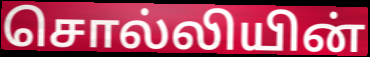
சொல்லியின்